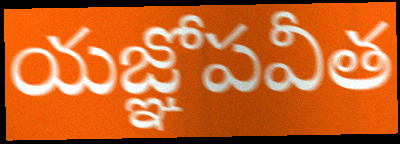
యజ్ఞోపవీత